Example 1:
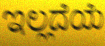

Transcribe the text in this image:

ಇಲ್ಲದೆಯೆ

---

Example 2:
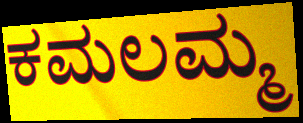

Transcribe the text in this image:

ಕಮಲಮ್ಮ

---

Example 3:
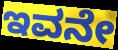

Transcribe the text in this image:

ಇವನೇ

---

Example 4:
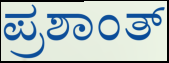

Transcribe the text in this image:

ಪ್ರಶಾಂತ್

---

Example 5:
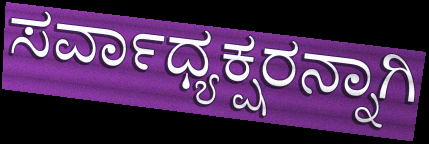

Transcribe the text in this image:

ಸರ್ವಾಧ್ಯಕ್ಷರನ್ನಾಗಿ